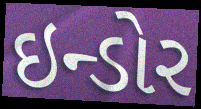
ઇન્ડોર